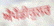
ਐਪੈਂਡੀਕੁਲਰ